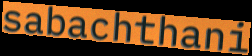
sabachthani